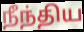
நீந்திய